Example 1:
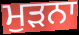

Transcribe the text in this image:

ਮੁੜਨਾ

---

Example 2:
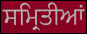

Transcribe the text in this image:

ਸਮ੍ਰਿਤੀਆਂ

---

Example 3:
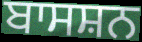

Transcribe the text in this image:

ਬਾਸਸ਼ਨ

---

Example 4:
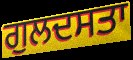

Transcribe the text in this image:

ਗੁਲਦਸਤਾ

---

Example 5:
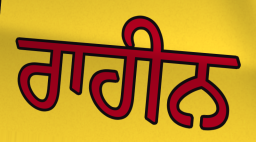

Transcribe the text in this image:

ਰਾਹੀਨ